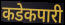
कडेकपारी